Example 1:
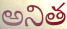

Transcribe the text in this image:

అనిత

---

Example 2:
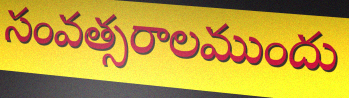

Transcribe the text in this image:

సంవత్సరాలముందు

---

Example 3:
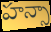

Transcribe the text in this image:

హన్సా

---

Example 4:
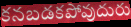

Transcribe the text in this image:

కనబడకపోవుదురు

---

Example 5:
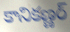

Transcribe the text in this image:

కానికణ్ణర్